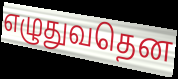
எழுதுவதென